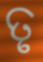
ତୃ